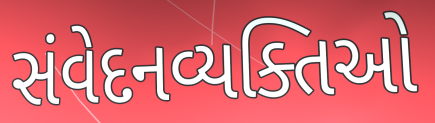
સંવેદનવ્યક્તિઓ